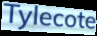
Tylecote